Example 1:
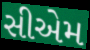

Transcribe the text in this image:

સીએમ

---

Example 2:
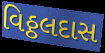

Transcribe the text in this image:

વિઠ્ઠલદાસ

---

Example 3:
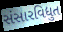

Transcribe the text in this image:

સંસારવિદ્યુત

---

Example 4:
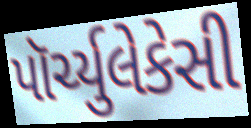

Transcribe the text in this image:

પૉર્ચ્યુલેકેસી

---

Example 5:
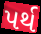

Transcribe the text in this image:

પર્થ